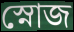
স্নোজ